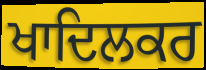
ਖਾਦਿਲਕਰ